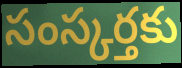
సంస్కర్తకు